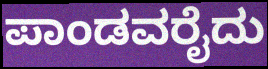
ಪಾಂಡವರೈದು